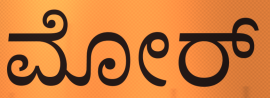
ಮೋರ್